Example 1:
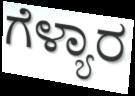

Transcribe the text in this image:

ಗೆಳ್ಯಾರ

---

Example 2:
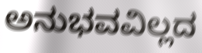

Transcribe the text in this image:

ಅನುಭವವಿಲ್ಲದ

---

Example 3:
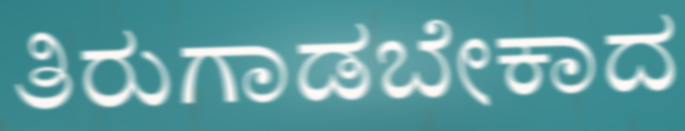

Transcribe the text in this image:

ತಿರುಗಾಡಬೇಕಾದ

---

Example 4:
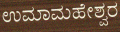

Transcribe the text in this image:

ಉಮಾಮಹೇಶ್ವರ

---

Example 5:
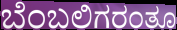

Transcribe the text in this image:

ಬೆಂಬಲಿಗರಂತೂ